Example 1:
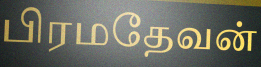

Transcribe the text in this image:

பிரமதேவன்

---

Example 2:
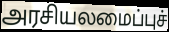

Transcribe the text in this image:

அரசியலமைப்புச்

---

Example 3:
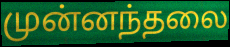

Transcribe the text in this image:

முன்னந்தலை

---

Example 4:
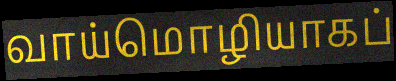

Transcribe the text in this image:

வாய்மொழியாகப்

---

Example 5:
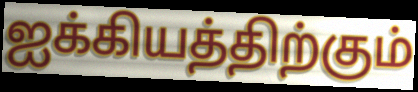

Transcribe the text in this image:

ஐக்கியத்திற்கும்